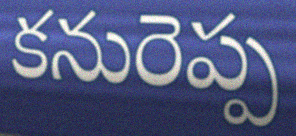
కనురెప్ప